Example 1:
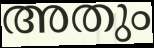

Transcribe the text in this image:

അതും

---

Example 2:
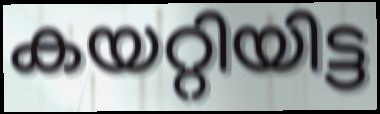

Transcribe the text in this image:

കയറ്റിയിട്ട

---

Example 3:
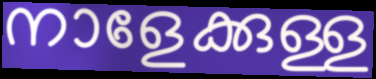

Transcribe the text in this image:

നാളേക്കുള്ള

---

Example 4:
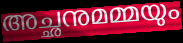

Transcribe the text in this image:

അച്ഛനുമമ്മയും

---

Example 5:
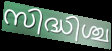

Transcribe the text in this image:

സിദ്ധിശ്ച